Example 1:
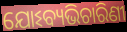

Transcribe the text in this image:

ଯୋଽବ୍ୟଭିଚାରିଣୀ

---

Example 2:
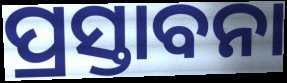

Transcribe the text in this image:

ପ୍ରସ୍ତାବନା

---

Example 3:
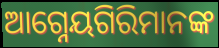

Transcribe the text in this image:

ଆଗ୍ନେୟଗିରିମାନଙ୍କ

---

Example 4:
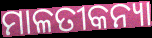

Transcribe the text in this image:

ମାଳତୀକନ୍ୟା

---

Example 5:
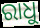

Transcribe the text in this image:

ରାଧୁ